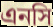
এনসি